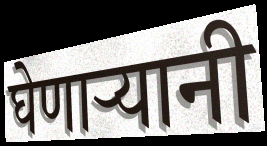
घेणाऱ्यानी